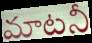
మాటనీ